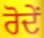
ਰੋਦੇਂ